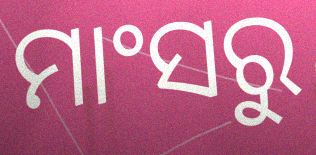
ମାଂସରୁ